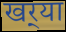
खर्या